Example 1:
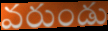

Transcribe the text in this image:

వరుండు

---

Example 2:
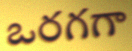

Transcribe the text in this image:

ఒరగగా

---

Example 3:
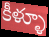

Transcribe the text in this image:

కీళ్ళూ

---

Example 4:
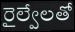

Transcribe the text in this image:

రైల్వేలతో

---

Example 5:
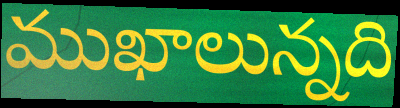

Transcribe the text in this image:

ముఖాలున్నది